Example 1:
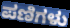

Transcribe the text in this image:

ಪಣಿಗಳು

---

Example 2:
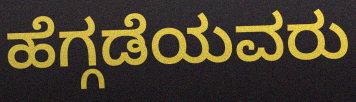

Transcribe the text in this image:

ಹೆಗ್ಗಡೆಯವರು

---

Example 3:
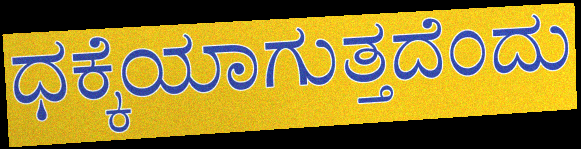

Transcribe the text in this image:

ಧಕ್ಕೆಯಾಗುತ್ತದೆಂದು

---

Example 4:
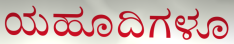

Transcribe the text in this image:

ಯಹೂದಿಗಳೂ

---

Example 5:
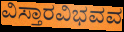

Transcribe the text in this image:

ವಿಸ್ತಾರವಿಭವವ